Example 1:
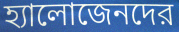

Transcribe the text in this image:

হ্যালোজেনদের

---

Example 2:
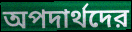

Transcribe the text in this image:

অপদার্থদের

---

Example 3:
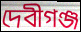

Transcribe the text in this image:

দেবীগঞ্জ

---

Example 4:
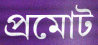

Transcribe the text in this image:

প্রমোট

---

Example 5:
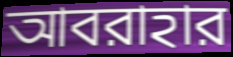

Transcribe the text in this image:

আবরাহার